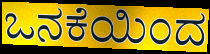
ಒನಕೆಯಿಂದ